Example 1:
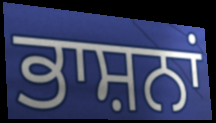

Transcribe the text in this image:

ਭਾਸ਼ਨਾਂ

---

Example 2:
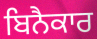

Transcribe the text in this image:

ਬਿਨੈਕਾਰ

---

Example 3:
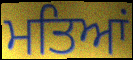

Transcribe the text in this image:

ਮਤਿਆਂ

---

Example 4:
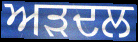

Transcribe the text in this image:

ਅੜਦਲ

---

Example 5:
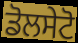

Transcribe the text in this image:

ਡੋਲਸੇਟੋ